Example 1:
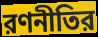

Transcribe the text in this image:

রণনীতির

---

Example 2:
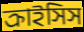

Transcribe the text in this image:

ক্রাইসিস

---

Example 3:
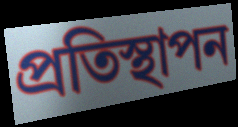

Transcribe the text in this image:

প্রতিস্থাপন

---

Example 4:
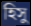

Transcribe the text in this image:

হিসু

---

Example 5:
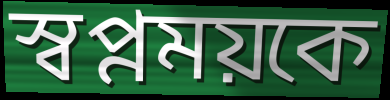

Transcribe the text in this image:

স্বপ্নময়কে